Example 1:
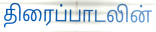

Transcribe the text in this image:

திரைப்பாடலின்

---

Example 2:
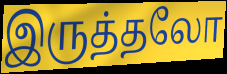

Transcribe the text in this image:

இருத்தலோ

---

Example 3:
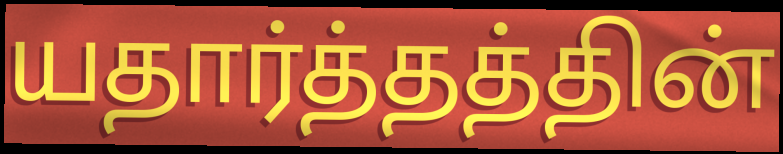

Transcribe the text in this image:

யதார்த்தத்தின்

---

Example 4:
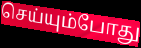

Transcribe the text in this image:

செய்யும்போது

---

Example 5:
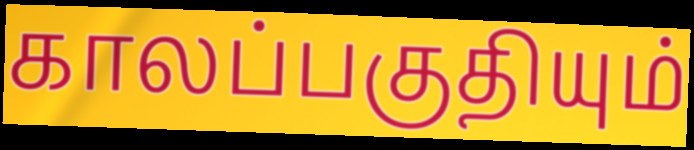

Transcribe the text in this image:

காலப்பகுதியும்